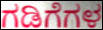
ಗಡಿಗೆಗಳ